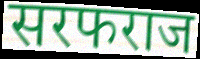
सरफराज